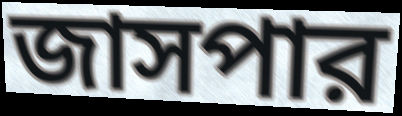
জাসপার